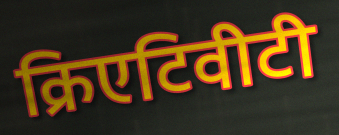
क्रिएटिवीटी